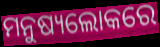
ମନୁଷ୍ୟଲୋକରେ